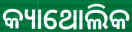
କ୍ୟାଥୋଲିକ